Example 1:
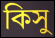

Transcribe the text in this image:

কিসু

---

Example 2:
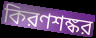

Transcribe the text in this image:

কিরণশঙ্কর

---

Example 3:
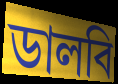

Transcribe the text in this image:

ডালবি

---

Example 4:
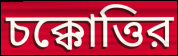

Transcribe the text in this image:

চক্কোত্তির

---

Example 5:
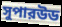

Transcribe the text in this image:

সুপারউড